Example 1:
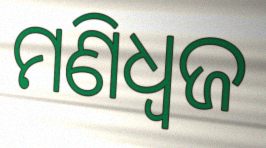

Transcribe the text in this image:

ମଣିଧ୍ୱଜ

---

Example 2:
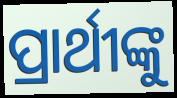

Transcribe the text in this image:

ପ୍ରାର୍ଥୀଙ୍କୁ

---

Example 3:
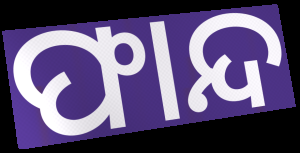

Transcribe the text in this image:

ଫାନ୍ଦ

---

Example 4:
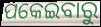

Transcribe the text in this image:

ପକେଇବାରୁ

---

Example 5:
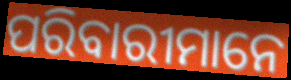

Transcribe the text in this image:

ପରିବାରୀମାନେ